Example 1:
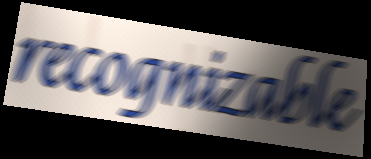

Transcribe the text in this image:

recognizable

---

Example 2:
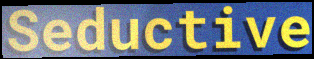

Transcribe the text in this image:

Seductive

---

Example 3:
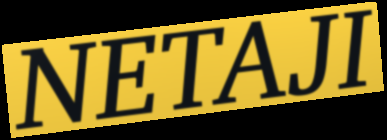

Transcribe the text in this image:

NETAJI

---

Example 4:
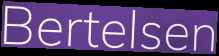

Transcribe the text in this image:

Bertelsen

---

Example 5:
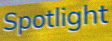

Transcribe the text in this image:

Spotlight